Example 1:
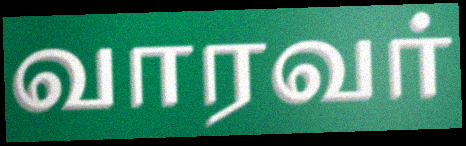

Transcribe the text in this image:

வாரவர்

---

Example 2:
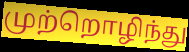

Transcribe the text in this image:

முற்றொழிந்து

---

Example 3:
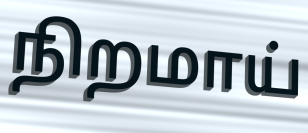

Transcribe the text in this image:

நிறமாய்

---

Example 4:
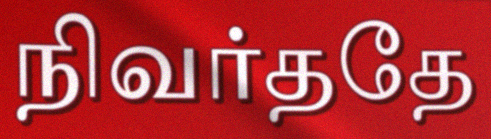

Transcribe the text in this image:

நிவர்ததே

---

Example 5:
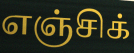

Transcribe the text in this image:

எஞ்சிக்